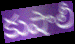
కుషాలీ